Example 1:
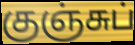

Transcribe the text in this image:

குஞ்சுப்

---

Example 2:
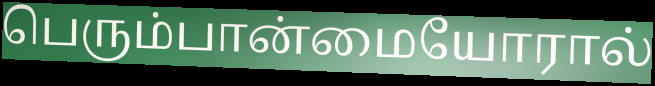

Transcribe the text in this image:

பெரும்பான்மையோரால்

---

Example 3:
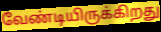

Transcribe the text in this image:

வேண்டியிருக்கிறது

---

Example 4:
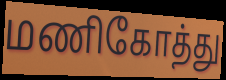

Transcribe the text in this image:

மணிகோத்து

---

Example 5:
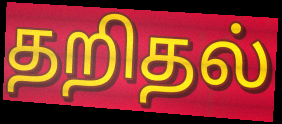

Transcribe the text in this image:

தறிதல்